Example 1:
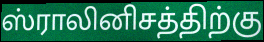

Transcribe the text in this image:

ஸ்ராலினிசத்திற்கு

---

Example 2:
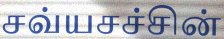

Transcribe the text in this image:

சவ்யசச்சின்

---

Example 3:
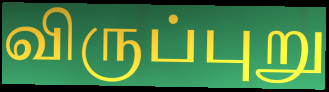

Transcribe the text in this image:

விருப்புறு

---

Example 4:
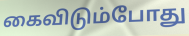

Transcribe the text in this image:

கைவிடும்போது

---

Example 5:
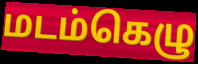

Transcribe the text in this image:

மடம்கெழு